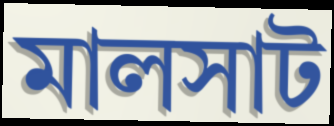
মালসাট